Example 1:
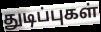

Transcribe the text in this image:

துடிப்புகள்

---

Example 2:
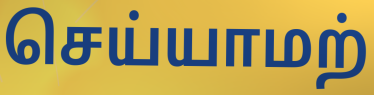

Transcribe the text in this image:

செய்யாமற்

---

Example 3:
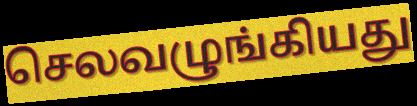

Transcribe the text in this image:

செலவழுங்கியது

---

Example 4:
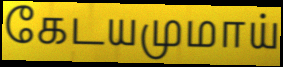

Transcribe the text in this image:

கேடயமுமாய்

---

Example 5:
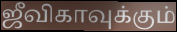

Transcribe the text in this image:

ஜீவிகாவுக்கும்